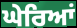
ਘੇਰਿਆਂ